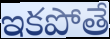
ఇకపోతే